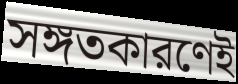
সঙ্গতকারণেই